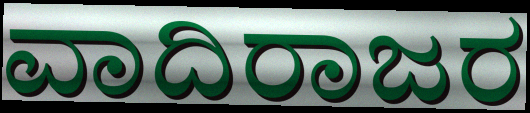
ವಾದಿರಾಜರ